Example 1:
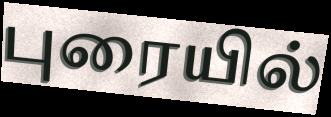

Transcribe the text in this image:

புரையில்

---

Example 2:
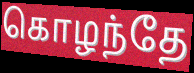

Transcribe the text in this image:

கொழந்தே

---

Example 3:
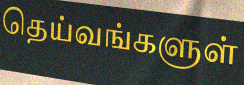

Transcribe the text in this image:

தெய்வங்களுள்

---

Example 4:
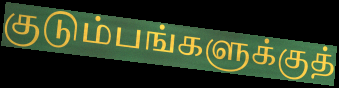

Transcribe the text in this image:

குடும்பங்களுக்குத்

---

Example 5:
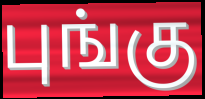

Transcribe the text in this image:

புங்கு